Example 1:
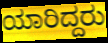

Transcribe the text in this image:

ಯಾರಿದ್ದರು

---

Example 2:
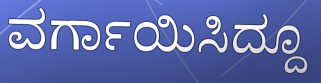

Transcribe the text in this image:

ವರ್ಗಾಯಿಸಿದ್ದೂ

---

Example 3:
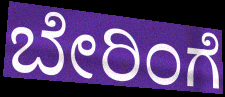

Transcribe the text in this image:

ಬೇರಿಂಗೆ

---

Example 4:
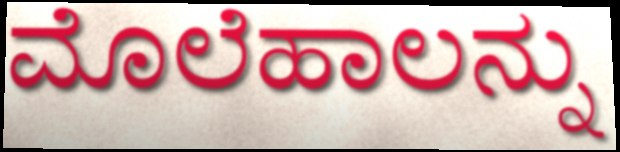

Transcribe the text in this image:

ಮೊಲೆಹಾಲನ್ನು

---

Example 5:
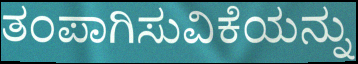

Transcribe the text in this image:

ತಂಪಾಗಿಸುವಿಕೆಯನ್ನು